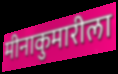
मीनाकुमारीला